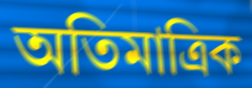
অতিমাত্রিক